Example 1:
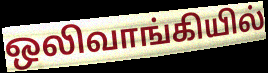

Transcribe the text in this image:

ஒலிவாங்கியில்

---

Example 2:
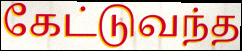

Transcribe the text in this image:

கேட்டுவந்த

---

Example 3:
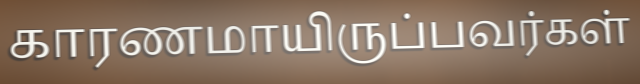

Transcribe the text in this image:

காரணமாயிருப்பவர்கள்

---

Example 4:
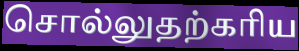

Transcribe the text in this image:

சொல்லுதற்கரிய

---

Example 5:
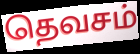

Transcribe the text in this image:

தெவசம்